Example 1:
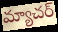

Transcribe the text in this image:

మ్యాచర్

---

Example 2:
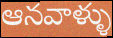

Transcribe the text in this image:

ఆనవాళ్ళు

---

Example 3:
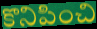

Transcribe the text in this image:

కొనిపించి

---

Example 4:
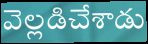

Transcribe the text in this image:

వెల్లడిచేశాడు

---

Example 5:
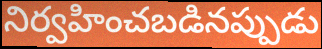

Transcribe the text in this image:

నిర్వహించబడినప్పుడు